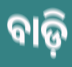
ବାଡ଼ି